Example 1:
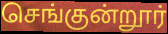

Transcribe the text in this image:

செங்குன்றூர்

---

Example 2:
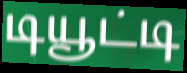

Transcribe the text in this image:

டியூட்டி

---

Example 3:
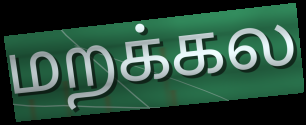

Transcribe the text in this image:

மறக்கல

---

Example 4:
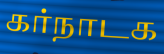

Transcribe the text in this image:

கர்நாடக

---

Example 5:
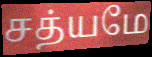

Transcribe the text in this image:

சத்யமே